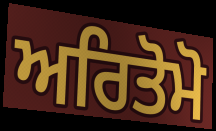
ਅਰਿਤੋਮੋ